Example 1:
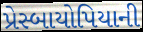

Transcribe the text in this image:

પ્રેસ્બાયોપિયાની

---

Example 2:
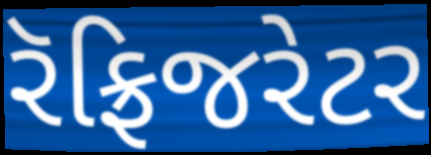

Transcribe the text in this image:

રૅફ્રિજરેટર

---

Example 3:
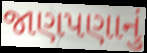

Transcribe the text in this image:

જાણપણાનું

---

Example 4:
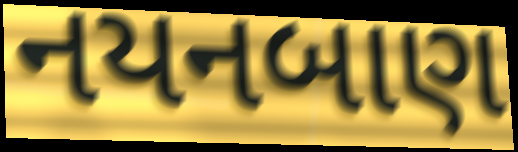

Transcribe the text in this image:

નયનબાણ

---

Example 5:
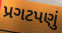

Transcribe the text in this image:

પ્રગટપણું